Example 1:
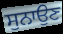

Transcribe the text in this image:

ਸੁਨਾਉਣ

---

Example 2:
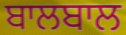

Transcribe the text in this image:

ਬਾਲਬਾਲ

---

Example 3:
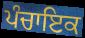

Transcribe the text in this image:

ਪੰਚਾਇਕ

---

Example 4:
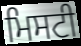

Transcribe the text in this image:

ਮਿਸਟੀ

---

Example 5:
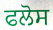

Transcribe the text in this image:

ਫਲੋਸ